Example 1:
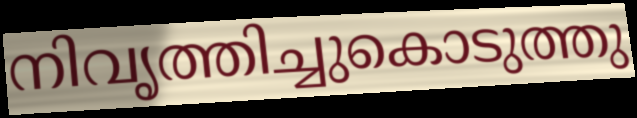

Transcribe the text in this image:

നിവൃത്തിച്ചുകൊടുത്തു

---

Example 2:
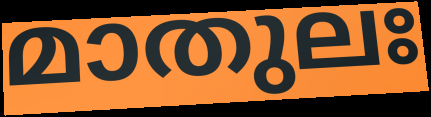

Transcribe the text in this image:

മാതുലഃ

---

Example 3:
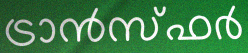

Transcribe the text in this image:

ട്രാൻസ്ഫർ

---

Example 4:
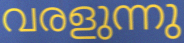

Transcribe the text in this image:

വരളുന്നു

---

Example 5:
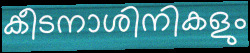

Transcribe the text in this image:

കീടനാശിനികളും